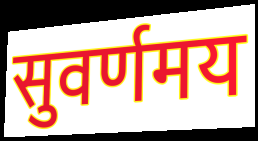
सुवर्णमय